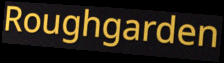
Roughgarden